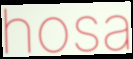
hosa